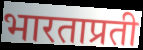
भारताप्रती